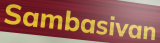
Sambasivan